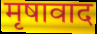
मृषावाद